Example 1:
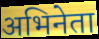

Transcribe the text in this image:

अभिनेता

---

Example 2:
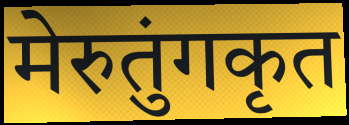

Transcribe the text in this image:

मेरुतुंगकृत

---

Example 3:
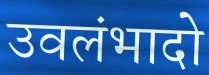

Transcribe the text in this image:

उवलंभादो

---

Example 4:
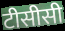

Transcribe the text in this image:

टीसीसी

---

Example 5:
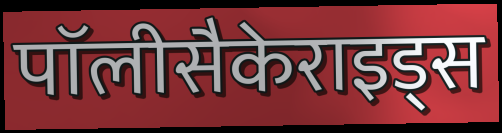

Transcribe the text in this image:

पॉलीसैकेराइड्स